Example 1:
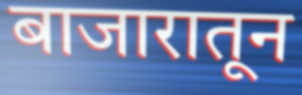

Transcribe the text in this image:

बाजारातून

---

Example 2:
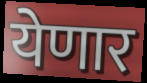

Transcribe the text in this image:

येणार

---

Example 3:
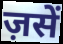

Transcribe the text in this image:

ज़सें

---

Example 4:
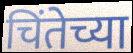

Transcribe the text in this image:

चिंतेच्या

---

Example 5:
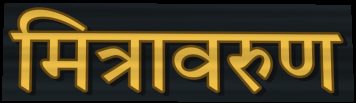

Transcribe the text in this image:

मित्रावरुण